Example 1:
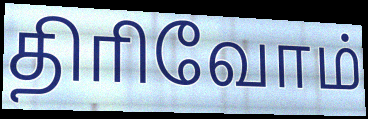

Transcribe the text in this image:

திரிவோம்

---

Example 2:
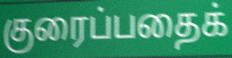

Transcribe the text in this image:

குரைப்பதைக்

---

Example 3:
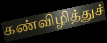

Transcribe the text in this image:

கண்விழித்துச்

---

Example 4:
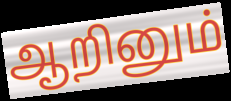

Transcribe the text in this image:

ஆறினும்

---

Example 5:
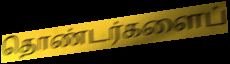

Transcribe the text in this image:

தொண்டர்களைப்